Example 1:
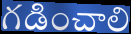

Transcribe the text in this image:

గడించాలి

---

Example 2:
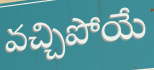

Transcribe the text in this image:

వచ్చిపోయే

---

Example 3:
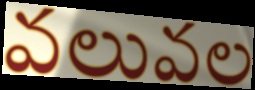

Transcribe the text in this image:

వలువల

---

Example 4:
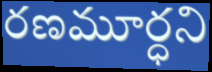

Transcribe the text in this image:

రణమూర్ధని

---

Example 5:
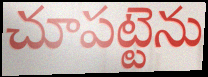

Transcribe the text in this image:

చూపట్టెను